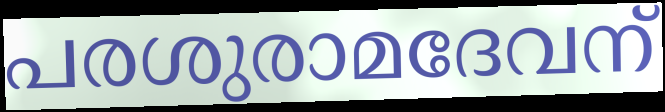
പരശുരാമദേവന്